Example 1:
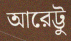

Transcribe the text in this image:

আরেট্টু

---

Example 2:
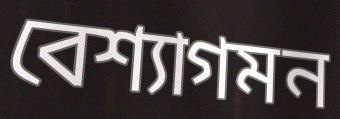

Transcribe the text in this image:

বেশ্যাগমন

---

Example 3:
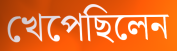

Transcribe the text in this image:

খেপেছিলেন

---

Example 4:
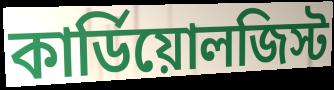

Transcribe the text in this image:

কার্ডিয়োলজিস্ট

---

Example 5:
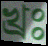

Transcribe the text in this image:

খ্রঃ